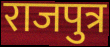
राजपुत्र